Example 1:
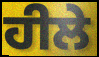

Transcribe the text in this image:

ਹੀਲੇ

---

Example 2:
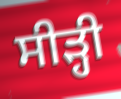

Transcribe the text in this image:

ਸੀੜ੍ਹੀ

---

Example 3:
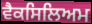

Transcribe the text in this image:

ਵੈਕਸਿਲਿਅਮ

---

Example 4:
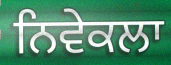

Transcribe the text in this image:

ਨਿਵੇਕਲਾ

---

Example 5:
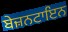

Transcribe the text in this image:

ਬੇਜ਼ਨਟਾਇਨ